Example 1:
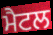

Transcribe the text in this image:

ਮੈਟਲ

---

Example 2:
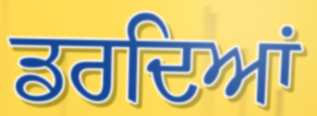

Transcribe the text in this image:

ਡਰਦਿਆਂ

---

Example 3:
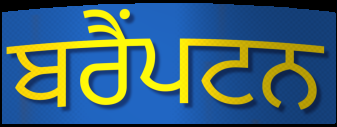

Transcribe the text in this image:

ਬਰੈੰਪਟਨ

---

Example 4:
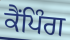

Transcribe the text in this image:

ਕੈਂਪਿੰਗ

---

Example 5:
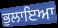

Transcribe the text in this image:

ਭੁਲਾਇਆ